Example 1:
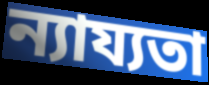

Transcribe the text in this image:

ন্যায্যতা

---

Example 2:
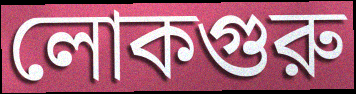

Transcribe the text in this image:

লোকগুরু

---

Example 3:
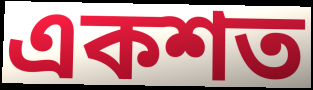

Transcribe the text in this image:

একশত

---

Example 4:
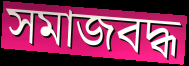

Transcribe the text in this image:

সমাজবদ্ধ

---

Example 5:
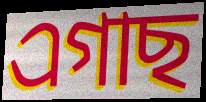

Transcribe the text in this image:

এগাছ